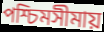
পশ্চিমসীমায়